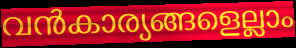
വൻകാര്യങ്ങളെല്ലാം